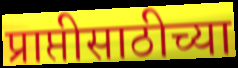
प्राप्तीसाठीच्या